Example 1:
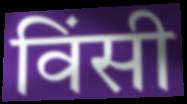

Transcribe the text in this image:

विंसी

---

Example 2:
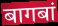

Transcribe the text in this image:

बागबां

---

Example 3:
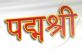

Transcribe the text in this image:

पद्मश्री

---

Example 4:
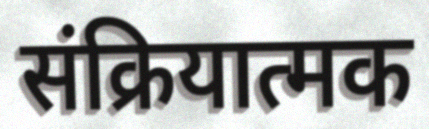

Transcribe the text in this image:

संक्रियात्मक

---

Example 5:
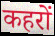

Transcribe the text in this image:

कहरों